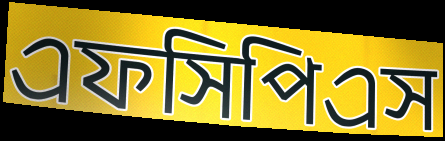
এফসিপিএস